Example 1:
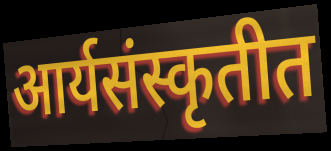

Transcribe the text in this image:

आर्यसंस्कृतीत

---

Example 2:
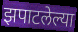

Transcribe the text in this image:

झपाटलेल्या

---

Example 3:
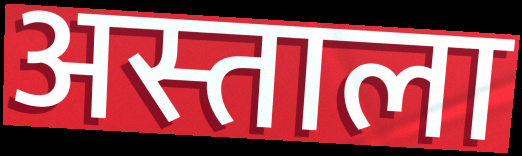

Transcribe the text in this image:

अस्ताला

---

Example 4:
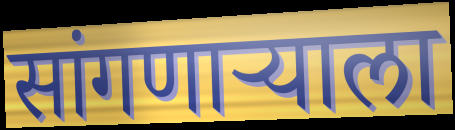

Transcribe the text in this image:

सांगणार्‍याला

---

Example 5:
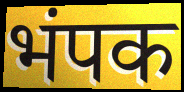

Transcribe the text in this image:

भंपक